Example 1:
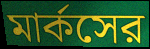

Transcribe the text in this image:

মার্কসের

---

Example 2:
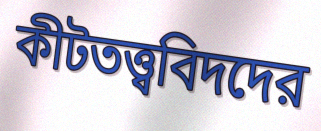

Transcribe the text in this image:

কীটতত্ত্ববিদদের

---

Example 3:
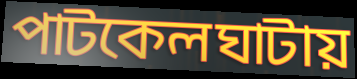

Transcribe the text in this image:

পাটকেলঘাটায়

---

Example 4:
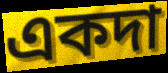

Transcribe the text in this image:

একদা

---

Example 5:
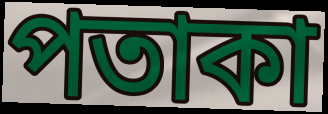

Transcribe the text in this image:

পতাকা